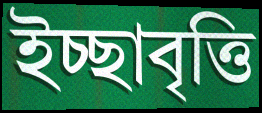
ইচ্ছাবৃত্তি